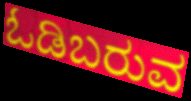
ಓಡಿಬರುವ